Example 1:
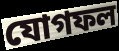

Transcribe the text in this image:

যোগফল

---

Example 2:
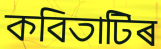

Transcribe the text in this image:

কবিতাটিৰ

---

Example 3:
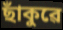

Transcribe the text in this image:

ছাঁকুৱে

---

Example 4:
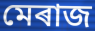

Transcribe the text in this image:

মেৰাজ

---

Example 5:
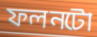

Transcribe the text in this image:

ফলনটো